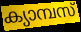
ക്യാമ്പസ്